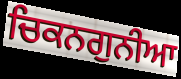
ਚਿਕਨਗੁਨੀਆ